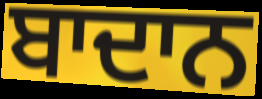
ਬਾਦਾਨ